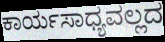
ಕಾರ್ಯಸಾಧ್ಯವಲ್ಲದ